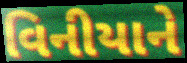
વિનીયાને